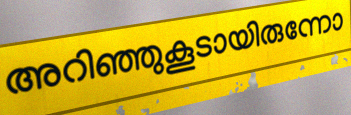
അറിഞ്ഞുകൂടായിരുന്നോ